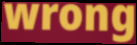
wrong